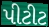
પીટીટ